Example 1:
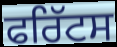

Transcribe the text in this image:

ਫਰਿੱਟਸ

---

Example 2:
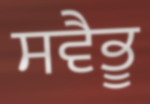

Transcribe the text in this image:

ਸਵੈਭੂ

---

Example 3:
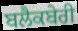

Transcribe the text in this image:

ਬਲੈਕਬੇਰੀ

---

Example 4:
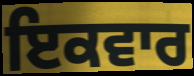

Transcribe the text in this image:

ਇਕਵਾਰ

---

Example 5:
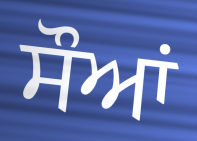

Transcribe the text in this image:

ਸੌਆਂ